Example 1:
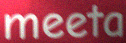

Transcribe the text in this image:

meeta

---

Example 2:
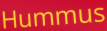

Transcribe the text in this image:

Hummus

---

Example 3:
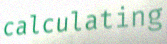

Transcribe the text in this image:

calculating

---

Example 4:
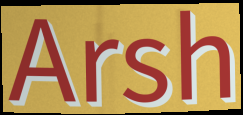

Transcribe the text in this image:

Arsh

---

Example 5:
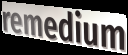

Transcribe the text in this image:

remedium